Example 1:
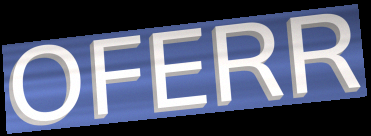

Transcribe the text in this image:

OFERR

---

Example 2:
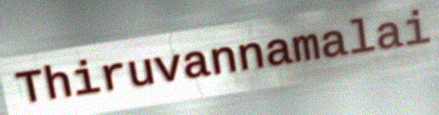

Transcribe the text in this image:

Thiruvannamalai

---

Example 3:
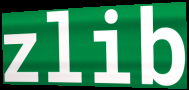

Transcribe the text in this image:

zlib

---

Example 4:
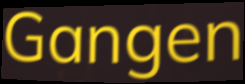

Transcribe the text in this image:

Gangen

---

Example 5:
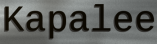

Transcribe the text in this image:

Kapalee